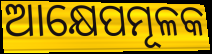
ଆକ୍ଷେପମୂଳକ